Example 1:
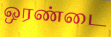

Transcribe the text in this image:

ஒரண்டை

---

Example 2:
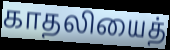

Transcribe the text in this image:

காதலியைத்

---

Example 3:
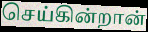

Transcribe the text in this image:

செய்கின்றான்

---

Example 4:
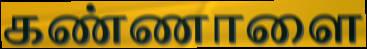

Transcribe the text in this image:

கண்ணாளை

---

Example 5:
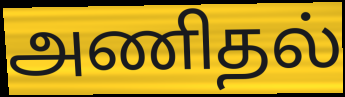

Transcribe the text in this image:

அணிதல்